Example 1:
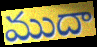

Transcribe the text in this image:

ముదా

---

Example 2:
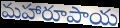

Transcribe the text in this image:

మహారూపాయ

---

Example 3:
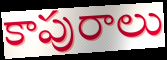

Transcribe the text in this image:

కాపురాలు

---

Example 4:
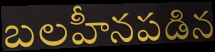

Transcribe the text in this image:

బలహీనపడిన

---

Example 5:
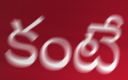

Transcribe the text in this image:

కంటే